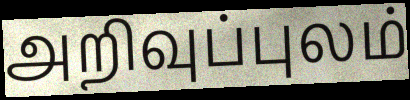
அறிவுப்புலம்